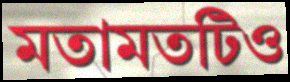
মতামতটিও